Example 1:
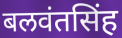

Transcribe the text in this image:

बलवंतसिंह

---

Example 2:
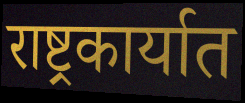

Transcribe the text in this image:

राष्ट्रकार्यात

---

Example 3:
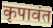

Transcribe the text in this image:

कृपावंत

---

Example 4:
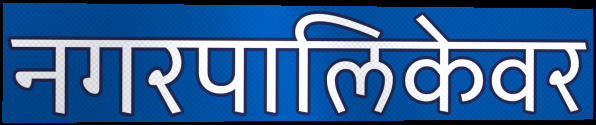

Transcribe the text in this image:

नगरपालिकेवर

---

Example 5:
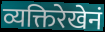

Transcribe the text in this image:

व्यक्तिरेखेनं